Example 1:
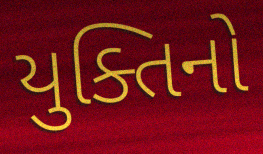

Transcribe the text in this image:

યુક્તિનો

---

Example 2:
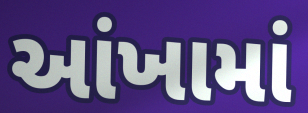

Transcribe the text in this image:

આંખામાં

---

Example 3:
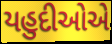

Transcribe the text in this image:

યહુદીઓએ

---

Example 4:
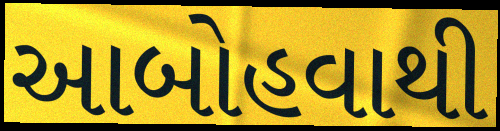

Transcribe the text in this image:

આબોહવાથી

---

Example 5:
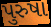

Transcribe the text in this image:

પુરુષા